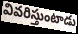
వివరిస్తుంటాడు